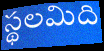
స్థలమిది